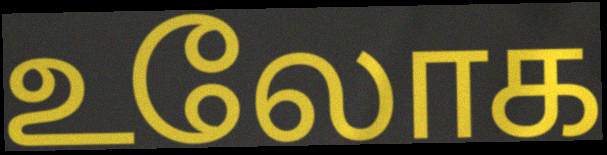
உலோக